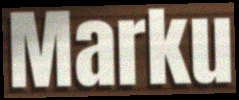
Marku